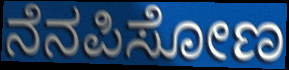
ನೆನಪಿಸೋಣ